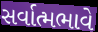
સર્વાત્મભાવે